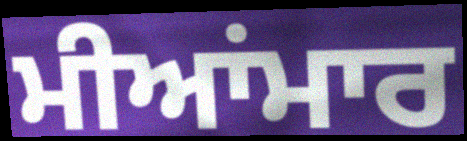
ਮੀਆਂਮਾਰ